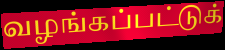
வழங்கப்பட்டுக்